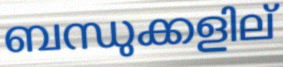
ബന്ധുക്കളില്